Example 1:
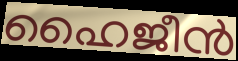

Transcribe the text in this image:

ഹൈജീൻ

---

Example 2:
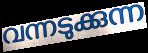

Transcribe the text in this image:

വന്നടുക്കുന്ന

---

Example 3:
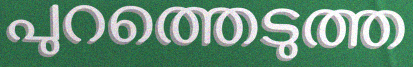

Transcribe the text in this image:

പുറത്തെടുത്ത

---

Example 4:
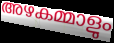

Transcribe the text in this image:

അഴകമ്മാളും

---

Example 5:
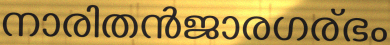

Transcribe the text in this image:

നാരിതൻജാരഗര്ഭം